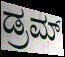
ಡ್ರಮ್